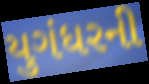
યુગંધરની